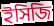
ইসিজি